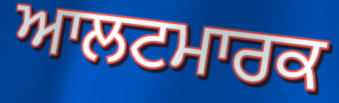
ਆਲਟਮਾਰਕ